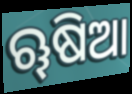
ୠଷିଆ